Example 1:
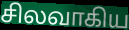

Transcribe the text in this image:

சிலவாகிய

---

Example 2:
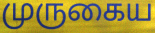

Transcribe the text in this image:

முருகைய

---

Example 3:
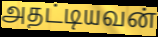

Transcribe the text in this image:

அதட்டியவன்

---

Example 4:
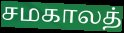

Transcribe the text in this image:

சமகாலத்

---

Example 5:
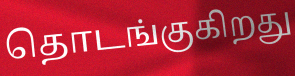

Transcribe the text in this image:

தொடங்குகிறது